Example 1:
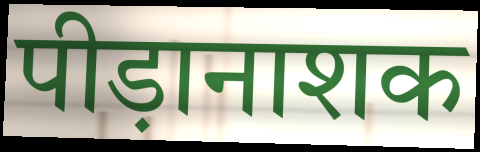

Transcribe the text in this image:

पीड़ानाशक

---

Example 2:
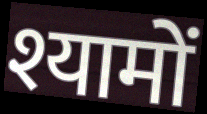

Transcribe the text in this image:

श्यामों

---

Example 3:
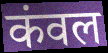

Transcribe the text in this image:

कंवल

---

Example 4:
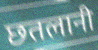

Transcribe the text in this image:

छतलानी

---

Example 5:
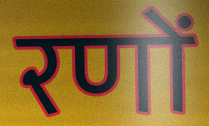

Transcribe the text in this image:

रणों